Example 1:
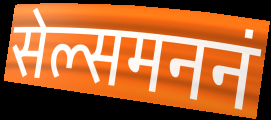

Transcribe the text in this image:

सेल्समननं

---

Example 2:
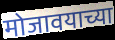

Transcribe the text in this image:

मोजावयाच्या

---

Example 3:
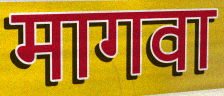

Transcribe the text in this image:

मागवा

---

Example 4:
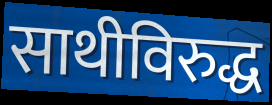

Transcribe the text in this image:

साथीविरुद्ध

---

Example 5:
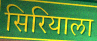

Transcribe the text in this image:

सिरियाला